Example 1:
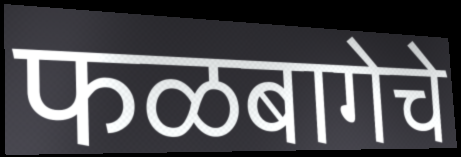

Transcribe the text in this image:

फळबागेचे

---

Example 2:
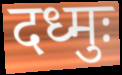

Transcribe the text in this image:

दध्मुः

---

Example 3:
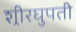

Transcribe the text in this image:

श्रीरघुपती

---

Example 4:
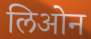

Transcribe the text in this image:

लिओन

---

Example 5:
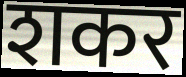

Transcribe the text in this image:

शकर